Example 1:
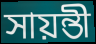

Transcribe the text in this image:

সায়ন্তী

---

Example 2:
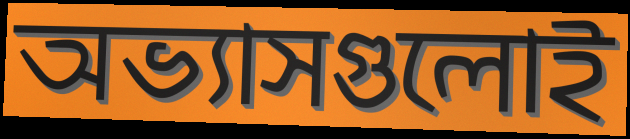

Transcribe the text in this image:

অভ্যাসগুলোই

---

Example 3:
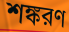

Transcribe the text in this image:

শঙ্করণ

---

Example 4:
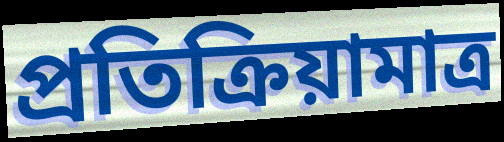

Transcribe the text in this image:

প্রতিক্রিয়ামাত্র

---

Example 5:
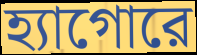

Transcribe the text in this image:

হ্যাগোরে